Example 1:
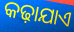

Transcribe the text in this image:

କଢ଼ାଯାଏ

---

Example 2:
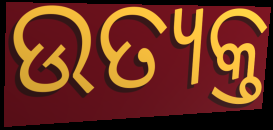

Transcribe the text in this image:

ଉତ୍ୟକ୍ତ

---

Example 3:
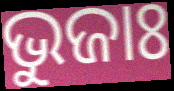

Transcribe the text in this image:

ଭୁଜାଃ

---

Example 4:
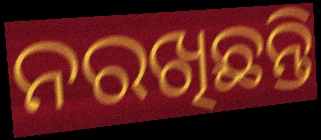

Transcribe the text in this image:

ନରଖିଛନ୍ତି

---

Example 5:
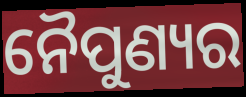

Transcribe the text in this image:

ନୈପୁଣ୍ୟର